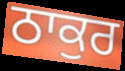
ਠਾਕੁਰ